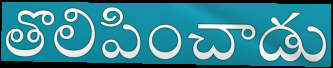
తొలిపించాడు